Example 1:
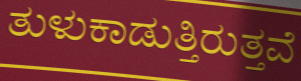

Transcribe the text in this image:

ತುಳುಕಾಡುತ್ತಿರುತ್ತವೆ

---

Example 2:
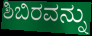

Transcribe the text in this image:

ಶಿಬಿರವನ್ನು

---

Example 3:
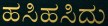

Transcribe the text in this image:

ಹಸಿಹಸಿದು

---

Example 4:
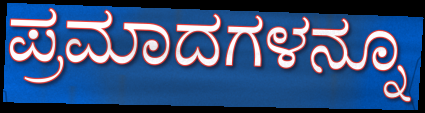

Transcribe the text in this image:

ಪ್ರಮಾದಗಳನ್ನೂ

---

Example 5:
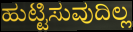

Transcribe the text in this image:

ಹುಟ್ಟಿಸುವುದಿಲ್ಲ